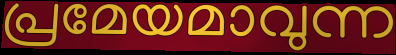
പ്രമേയമാവുന്ന